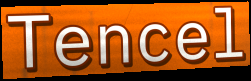
Tencel